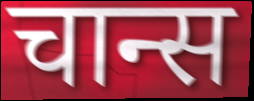
चान्स